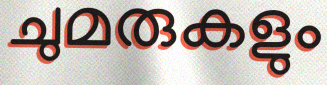
ചുമരുകളും